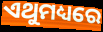
ଏଥୁମଧ୍ୟରେ